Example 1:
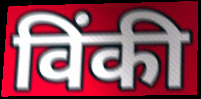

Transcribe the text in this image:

विंकी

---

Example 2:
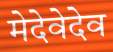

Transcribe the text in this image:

मेदेवेदेव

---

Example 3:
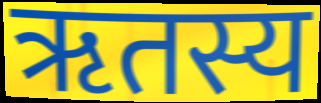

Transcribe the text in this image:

ॠतस्य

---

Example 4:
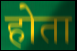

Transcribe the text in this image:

होता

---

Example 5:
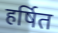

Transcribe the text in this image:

हर्षित